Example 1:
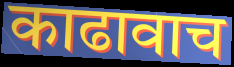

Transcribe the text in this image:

काढावाच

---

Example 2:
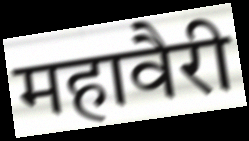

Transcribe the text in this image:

महावैरी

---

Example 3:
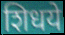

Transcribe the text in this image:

शिधये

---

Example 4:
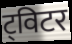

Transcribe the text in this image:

ट्‌विटर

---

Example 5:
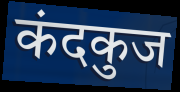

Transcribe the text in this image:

कंदकुज